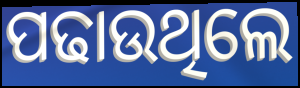
ପଢାଉଥିଲେ